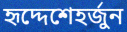
হৃদ্দেশেহর্জুন